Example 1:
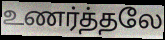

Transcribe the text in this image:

உணர்த்தலே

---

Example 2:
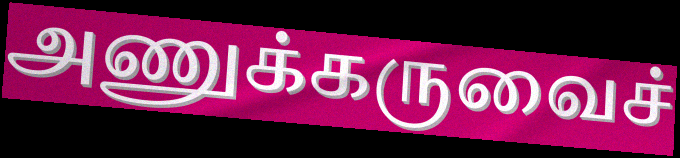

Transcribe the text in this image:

அணுக்கருவைச்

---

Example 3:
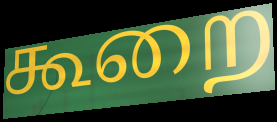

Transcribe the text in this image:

கூறை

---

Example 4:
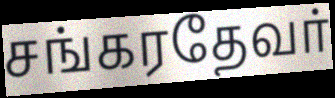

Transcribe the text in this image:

சங்கரதேவர்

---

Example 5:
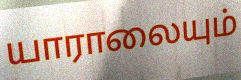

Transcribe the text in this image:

யாராலையும்